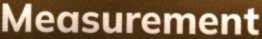
Measurement